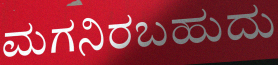
ಮಗನಿರಬಹುದು